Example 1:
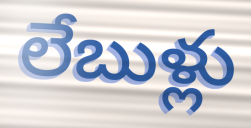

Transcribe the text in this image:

లేబుళ్లు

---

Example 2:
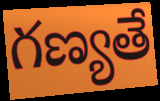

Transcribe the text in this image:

గణ్యతే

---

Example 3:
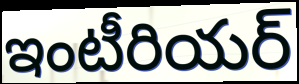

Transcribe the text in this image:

ఇంటీరియర్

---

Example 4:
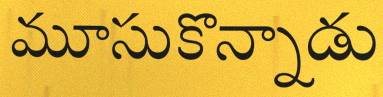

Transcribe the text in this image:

మూసుకొన్నాడు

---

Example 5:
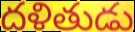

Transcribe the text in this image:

దళితుడు